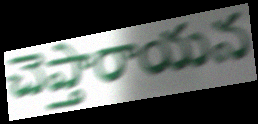
చెప్తారాయన